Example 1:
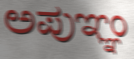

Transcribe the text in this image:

ಅಪುಞ್ಞಂ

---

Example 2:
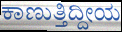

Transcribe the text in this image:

ಕಾಣುತ್ತಿದ್ದೀಯ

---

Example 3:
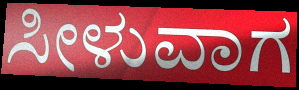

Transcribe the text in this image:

ಸೀಳುವಾಗ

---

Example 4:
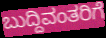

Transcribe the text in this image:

ಬುದ್ದಿವಂತರಿಗೆ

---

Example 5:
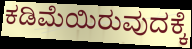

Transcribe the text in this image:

ಕಡಿಮೆಯಿರುವುದಕ್ಕೆ